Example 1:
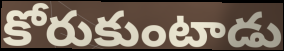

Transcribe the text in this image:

కోరుకుంటాడు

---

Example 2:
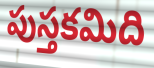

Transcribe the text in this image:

పుస్తకమిది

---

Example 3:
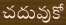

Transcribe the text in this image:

చదువుకో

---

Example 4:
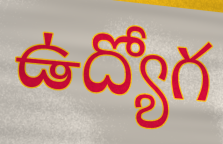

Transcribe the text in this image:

ఉద్యోగ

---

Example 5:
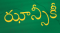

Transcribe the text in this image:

ఝాన్సీకీ